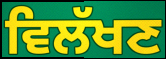
ਵਿਲੱਖਣ